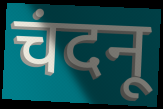
चंदनू